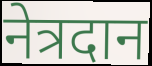
नेत्रदान